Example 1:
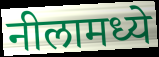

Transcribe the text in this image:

नीलामध्ये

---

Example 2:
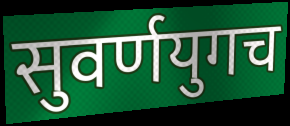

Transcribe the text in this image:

सुवर्णयुगच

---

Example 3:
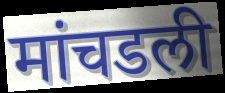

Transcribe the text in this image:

मांचडली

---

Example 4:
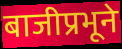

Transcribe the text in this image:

बाजीप्रभूने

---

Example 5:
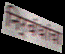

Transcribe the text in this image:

निर्बंधांचा